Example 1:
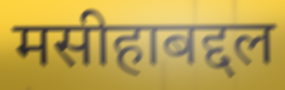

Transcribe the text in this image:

मसीहाबद्दल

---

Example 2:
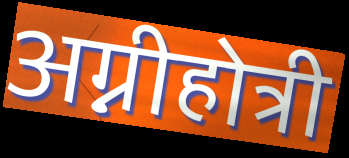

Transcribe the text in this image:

अग्नीहोत्री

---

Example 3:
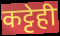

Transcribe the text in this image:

कट्टेही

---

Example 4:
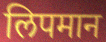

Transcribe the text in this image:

लिपमान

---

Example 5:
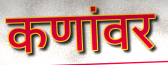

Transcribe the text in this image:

कणांवर